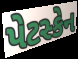
પેટસ્કેન